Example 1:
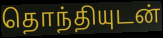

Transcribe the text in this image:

தொந்தியுடன்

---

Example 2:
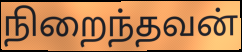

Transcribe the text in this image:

நிறைந்தவன்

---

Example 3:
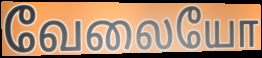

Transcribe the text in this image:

வேலையோ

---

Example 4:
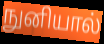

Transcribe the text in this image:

நுனியால்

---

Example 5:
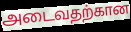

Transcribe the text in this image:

அடைவதற்கான